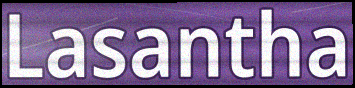
Lasantha